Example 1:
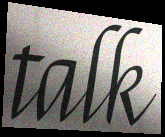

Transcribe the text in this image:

talk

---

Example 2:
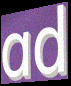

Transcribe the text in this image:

ad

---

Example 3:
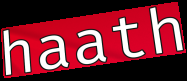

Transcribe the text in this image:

haath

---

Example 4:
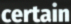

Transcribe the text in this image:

certain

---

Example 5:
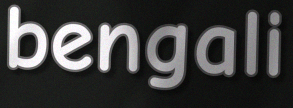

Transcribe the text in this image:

bengali